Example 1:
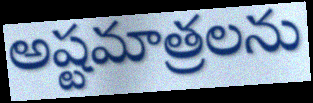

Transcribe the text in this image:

అష్టమాత్రలను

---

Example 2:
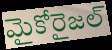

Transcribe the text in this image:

మైకోరైజల్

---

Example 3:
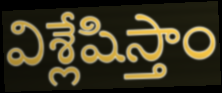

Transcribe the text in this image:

విశ్లేషిస్తాం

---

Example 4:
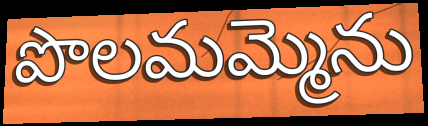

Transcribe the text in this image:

పొలమమ్మెను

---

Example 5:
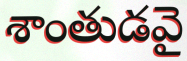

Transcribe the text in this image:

శాంతుడవై